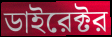
ডাইরেক্টর